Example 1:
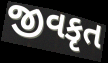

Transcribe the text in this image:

જીવકૃત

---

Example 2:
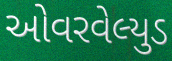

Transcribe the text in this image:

ઓવરવેલ્યુડ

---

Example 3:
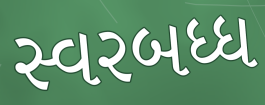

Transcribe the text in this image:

સ્વરબધ્ધ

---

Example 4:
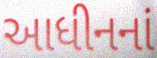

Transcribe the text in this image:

આધીનનાં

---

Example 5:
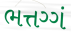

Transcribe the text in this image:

ભત્તગ્ગં